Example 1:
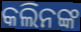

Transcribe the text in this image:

କଲିନଙ୍କ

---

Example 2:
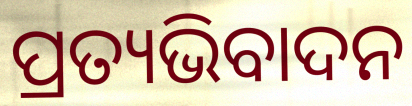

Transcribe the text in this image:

ପ୍ରତ୍ୟଭିବାଦନ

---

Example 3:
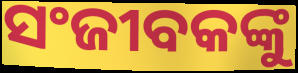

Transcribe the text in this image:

ସଂଜୀବକଙ୍କୁ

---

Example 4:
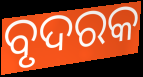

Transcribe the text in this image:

ବୃଦରକ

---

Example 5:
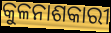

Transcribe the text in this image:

କୁଳନାଶକାରୀ